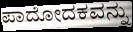
ಪಾದೋದಕವನ್ನು